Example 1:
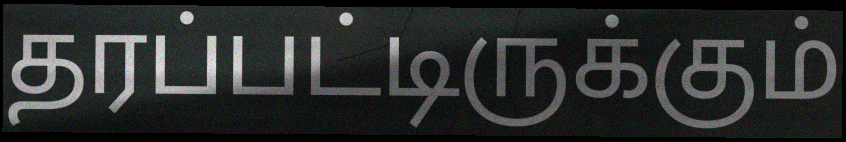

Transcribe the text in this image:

தரப்பட்டிருக்கும்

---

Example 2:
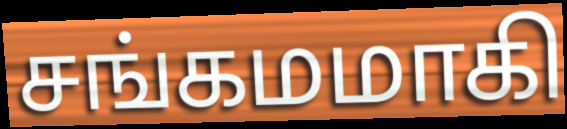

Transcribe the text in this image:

சங்கமமாகி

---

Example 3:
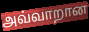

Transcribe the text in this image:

அவ்வாறான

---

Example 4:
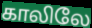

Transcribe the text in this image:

காலிலே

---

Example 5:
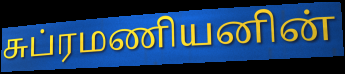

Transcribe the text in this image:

சுப்ரமணியனின்